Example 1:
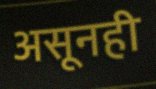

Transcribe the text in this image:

असूनही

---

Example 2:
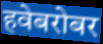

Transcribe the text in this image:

हवेबरोबर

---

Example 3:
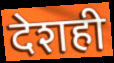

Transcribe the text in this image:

देशही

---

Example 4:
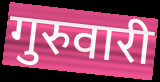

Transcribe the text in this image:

गुरुवारी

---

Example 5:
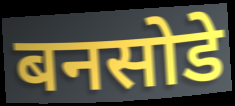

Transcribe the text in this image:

बनसोडे